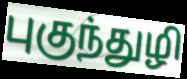
புகுந்துழி